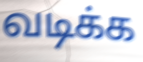
வடிக்க